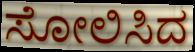
ಸೋಲಿಸಿದ